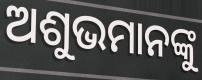
ଅଶୁଭମାନଙ୍କୁ